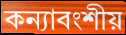
কন্যাবংশীয়